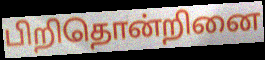
பிறிதொன்றினை